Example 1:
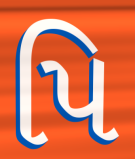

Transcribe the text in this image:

પિ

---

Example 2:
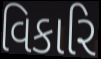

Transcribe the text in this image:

વિકારિ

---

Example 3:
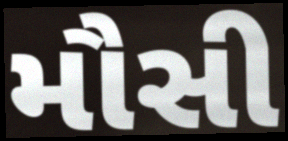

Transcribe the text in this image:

મૌસી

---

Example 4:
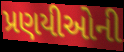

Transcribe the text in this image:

પ્રણયીઓની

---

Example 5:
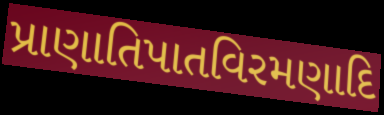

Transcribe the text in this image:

પ્રાણાતિપાતવિરમણાદિ